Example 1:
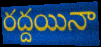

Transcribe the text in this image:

రద్దయినా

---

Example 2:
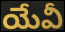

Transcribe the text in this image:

యేవీ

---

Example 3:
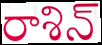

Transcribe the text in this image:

రాశిన్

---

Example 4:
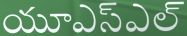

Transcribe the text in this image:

యూఎస్ఎల్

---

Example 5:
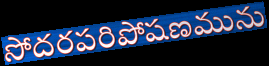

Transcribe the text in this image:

సోదరపరిపోషణమును